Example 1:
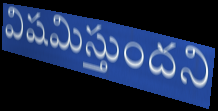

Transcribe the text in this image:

విషమిస్తుందని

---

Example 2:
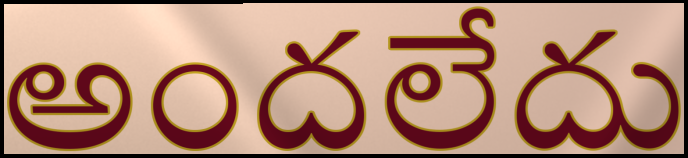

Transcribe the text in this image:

అందలేదు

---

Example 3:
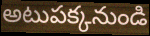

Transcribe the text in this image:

అటుపక్కనుండి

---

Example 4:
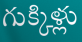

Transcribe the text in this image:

గుక్కిళ్లు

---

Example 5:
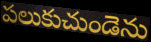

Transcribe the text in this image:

పలుకుచుండెను